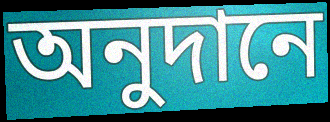
অনুদানে